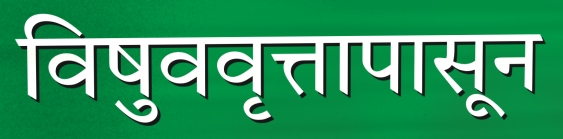
विषुववृत्तापासून